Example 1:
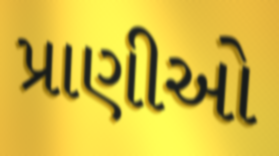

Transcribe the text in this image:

પ્રાણીઓ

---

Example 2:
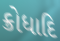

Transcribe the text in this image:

ક્રોધાદિ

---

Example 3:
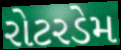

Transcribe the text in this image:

રોટરડેમ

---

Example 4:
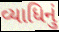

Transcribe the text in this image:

વ્યાધિનું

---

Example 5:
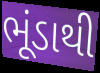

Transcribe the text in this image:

ભૂંડાથી